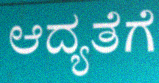
ಆದ್ಯತೆಗೆ